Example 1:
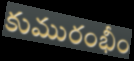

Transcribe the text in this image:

కుమురంభీం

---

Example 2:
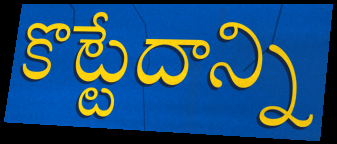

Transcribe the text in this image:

కొట్టేదాన్ని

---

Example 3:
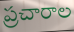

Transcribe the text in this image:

ప్రచారాల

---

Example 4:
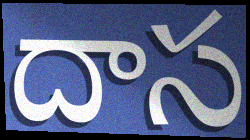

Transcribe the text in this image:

దాస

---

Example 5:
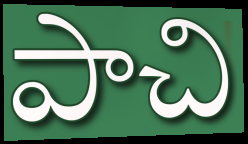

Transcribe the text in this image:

పాచి